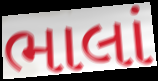
ભાલાં